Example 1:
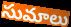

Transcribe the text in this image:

సుమాలు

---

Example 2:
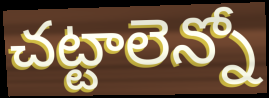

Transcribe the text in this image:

చట్టాలెన్నో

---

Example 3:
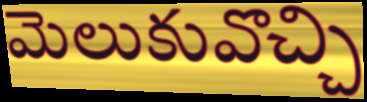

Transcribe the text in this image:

మెలుకువొచ్చి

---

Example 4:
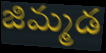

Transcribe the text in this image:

జిమ్మడ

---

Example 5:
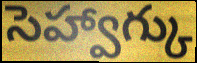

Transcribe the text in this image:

సెహ్వాగ్కు